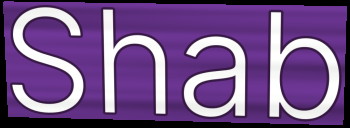
Shab